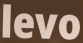
levo